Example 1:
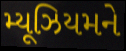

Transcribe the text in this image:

મ્યૂઝિયમને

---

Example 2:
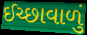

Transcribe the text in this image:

ઈચ્છાવાળું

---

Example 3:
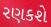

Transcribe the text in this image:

રણકશે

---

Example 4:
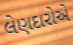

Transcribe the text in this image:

લેણદારોએ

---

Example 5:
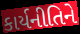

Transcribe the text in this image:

કાર્યનીતિને